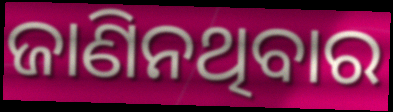
ଜାଣିନଥିବାର